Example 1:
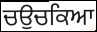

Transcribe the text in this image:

ਚਉਚਕਿਆ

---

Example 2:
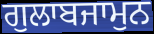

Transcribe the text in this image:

ਗੁਲਾਬਜਾਮੁਨ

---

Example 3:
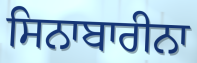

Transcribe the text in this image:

ਸਿਨਾਬਾਰੀਨਾ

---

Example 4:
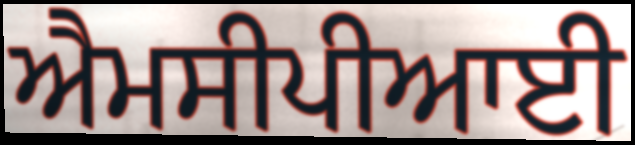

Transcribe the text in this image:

ਐਮਸੀਪੀਆਈ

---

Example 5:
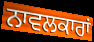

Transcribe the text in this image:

ਨਾਵਲਕਾਰਾਂ